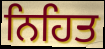
ਨਿਹਿਤ